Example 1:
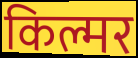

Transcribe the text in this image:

किल्मर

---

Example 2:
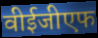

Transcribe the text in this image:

वीईजीएफ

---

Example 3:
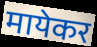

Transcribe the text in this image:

मायेकर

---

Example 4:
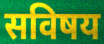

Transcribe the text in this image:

सविषय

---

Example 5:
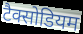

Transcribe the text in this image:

टैक्सोडियम